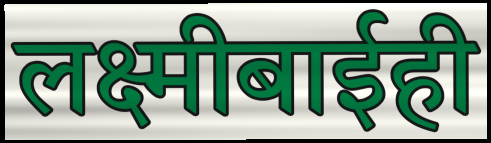
लक्ष्मीबाईही